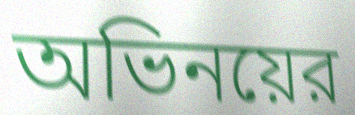
অভিনয়ের